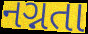
નગ્નતા